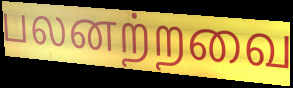
பலனற்றவை